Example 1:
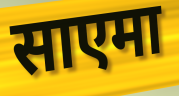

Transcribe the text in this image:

साएमा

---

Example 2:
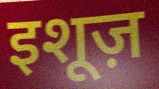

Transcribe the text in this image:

इशूज़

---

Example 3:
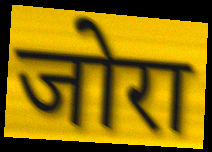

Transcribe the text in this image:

जोरा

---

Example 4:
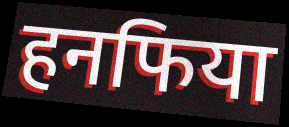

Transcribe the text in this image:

हनफिया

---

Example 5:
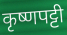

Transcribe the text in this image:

कृष्णपट्टी